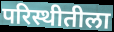
परिस्थीतीला